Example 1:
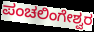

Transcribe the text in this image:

ಪಂಚಲಿಂಗೇಶ್ವರ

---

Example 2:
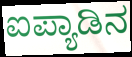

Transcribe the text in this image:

ಐಪ್ಯಾಡಿನ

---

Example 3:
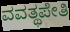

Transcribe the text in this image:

ವವತ್ಥಪೇತಿ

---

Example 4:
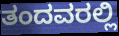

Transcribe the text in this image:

ತಂದವರಲ್ಲಿ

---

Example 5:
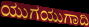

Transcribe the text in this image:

ಯುಗಯುಗಾದಿ